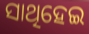
ସାଥିହେଇ